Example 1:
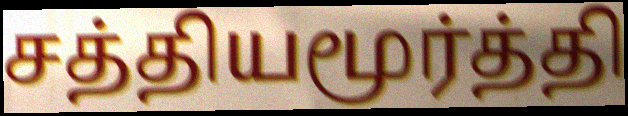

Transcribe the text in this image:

சத்தியமூர்த்தி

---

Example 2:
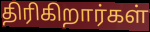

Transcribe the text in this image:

திரிகிறார்கள்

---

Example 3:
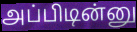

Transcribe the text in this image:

அப்பிடின்னு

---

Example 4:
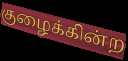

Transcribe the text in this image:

குழைக்கின்ற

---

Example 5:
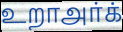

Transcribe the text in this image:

உறாஅர்க்